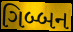
ગિબ્બન